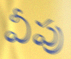
వీపు